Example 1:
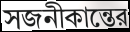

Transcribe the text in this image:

সজনীকান্তের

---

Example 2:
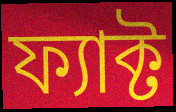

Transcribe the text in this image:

ফ্যাক্ট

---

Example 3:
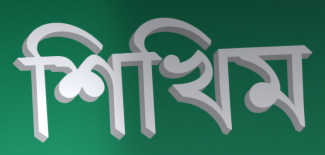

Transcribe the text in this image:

শিখিম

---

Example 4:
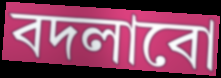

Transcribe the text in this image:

বদলাবো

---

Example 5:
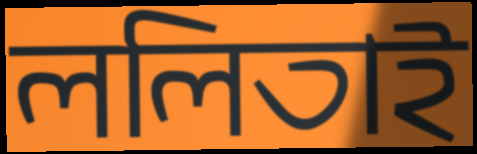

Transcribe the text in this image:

ললিতাই